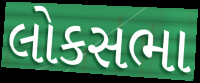
લોકસભા